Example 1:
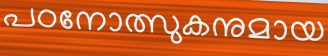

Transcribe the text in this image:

പഠനോത്സുകനുമായ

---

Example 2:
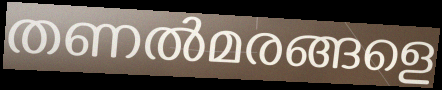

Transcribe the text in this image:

തണൽമരങ്ങളെ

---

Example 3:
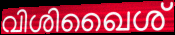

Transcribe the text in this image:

വിശിഖൈശ്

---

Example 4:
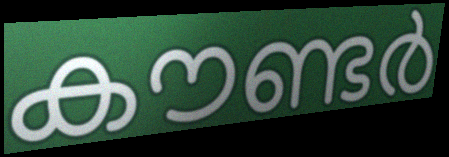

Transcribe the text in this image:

കൗണ്ടർ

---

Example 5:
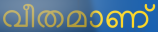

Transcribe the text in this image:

വീതമാണ്